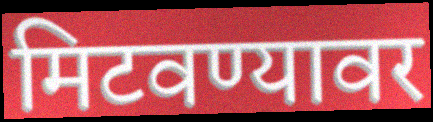
मिटवण्यावर